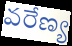
వరేణ్య